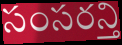
సంసరన్తి